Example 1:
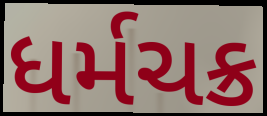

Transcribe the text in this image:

ધર્મચક્ર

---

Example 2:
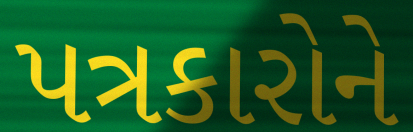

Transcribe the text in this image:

પત્રકારોને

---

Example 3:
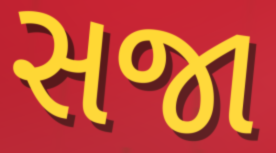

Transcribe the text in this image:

સજા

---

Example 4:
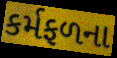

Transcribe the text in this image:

કર્મફળના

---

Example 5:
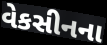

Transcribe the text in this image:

વેકસીનના